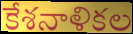
కేశనాళికల